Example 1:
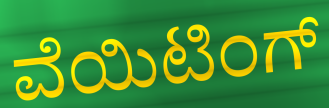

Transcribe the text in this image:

ವೆಯಿಟಿಂಗ್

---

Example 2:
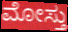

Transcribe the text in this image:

ಮೋಸ್ತು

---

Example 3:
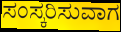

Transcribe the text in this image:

ಸಂಸ್ಕರಿಸುವಾಗ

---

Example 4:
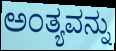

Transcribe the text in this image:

ಅಂತ್ಯವನ್ನು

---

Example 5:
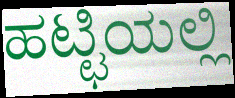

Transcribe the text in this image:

ಹಟ್ಟಿಯಲ್ಲಿ